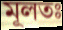
মূলতঃ